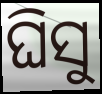
ଘିସୁ